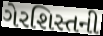
ગેરશિસ્તની